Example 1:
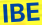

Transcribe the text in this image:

IBE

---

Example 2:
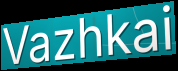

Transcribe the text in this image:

Vazhkai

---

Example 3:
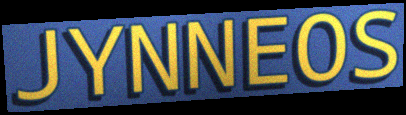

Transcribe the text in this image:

JYNNEOS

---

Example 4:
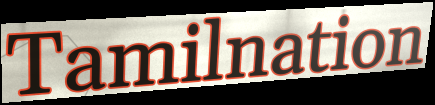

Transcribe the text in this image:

Tamilnation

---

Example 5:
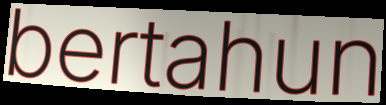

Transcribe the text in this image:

bertahun